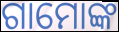
ଗାମୋଙ୍କ